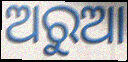
ଅରୁଆ